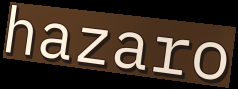
hazaro